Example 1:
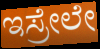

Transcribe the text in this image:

ಇಸ್ರೇಲೇ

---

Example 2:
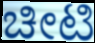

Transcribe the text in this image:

ಚೀಟಿ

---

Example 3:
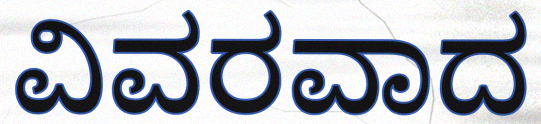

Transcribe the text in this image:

ವಿವರವಾದ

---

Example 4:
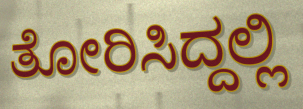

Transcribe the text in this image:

ತೋರಿಸಿದ್ದಲ್ಲಿ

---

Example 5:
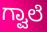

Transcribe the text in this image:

ಗ್ವಾಲೆ